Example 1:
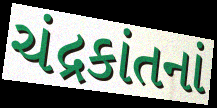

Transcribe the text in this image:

ચંદ્રકાંતનાં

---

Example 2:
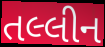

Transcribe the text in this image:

તલ્લીન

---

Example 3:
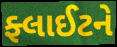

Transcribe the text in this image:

ફ્લાઈટને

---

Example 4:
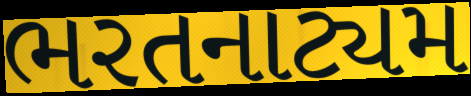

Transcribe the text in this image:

ભરતનાટ્યમ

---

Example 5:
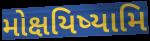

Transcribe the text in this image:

મોક્ષયિષ્યામિ